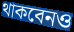
থাকবেনও